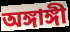
অঙ্গাঙ্গী